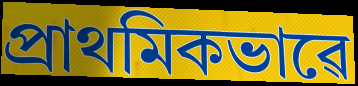
প্ৰাথমিকভাৱে